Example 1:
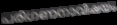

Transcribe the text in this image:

പരിഗണനാവിഷയം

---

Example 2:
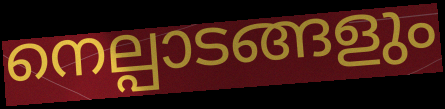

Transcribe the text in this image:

നെല്പാടങ്ങളും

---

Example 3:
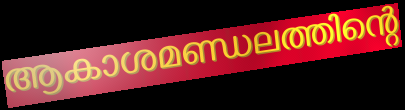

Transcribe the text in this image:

ആകാശമണ്ഡലത്തിന്റെ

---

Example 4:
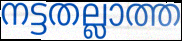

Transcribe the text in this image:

നട്ടതല്ലാത്ത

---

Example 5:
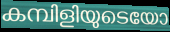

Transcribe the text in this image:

കമ്പിളിയുടെയോ